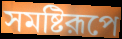
সমষ্টিরূপে